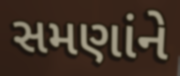
સમણાંને